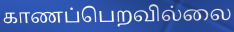
காணப்பெறவில்லை